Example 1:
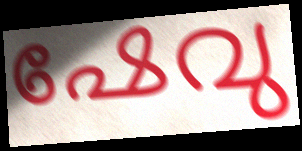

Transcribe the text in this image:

ഷേവു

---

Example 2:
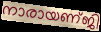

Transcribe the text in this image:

നാരായണ്ജി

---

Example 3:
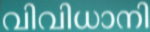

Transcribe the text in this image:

വിവിധാനി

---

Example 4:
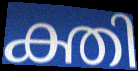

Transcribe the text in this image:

ക്തി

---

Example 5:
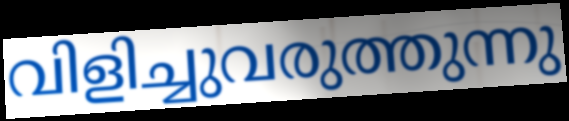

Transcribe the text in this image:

വിളിച്ചുവരുത്തുന്നു